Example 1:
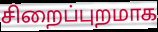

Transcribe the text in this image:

சிறைப்புறமாக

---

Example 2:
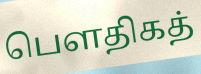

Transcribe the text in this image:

பௌதிகத்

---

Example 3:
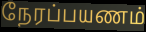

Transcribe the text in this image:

நேரப்பயணம்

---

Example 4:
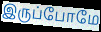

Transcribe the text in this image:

இருப்போமே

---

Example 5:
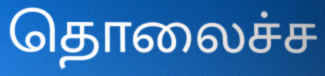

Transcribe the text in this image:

தொலைச்ச